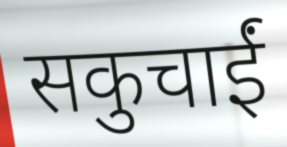
सकुचाईं